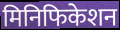
मिनिफिकेशन